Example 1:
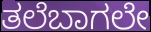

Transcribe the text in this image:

ತಲೆಬಾಗಲೇ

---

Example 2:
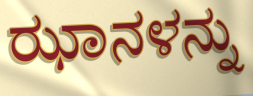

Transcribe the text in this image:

ಝಾನಳನ್ನು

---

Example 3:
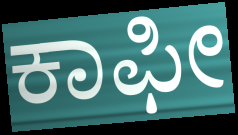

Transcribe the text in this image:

ಕಾಫೀ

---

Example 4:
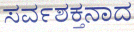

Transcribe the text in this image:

ಸರ್ವಶಕ್ತನಾದ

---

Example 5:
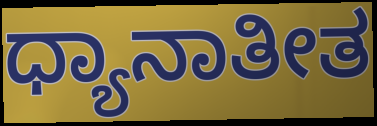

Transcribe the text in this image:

ಧ್ಯಾನಾತೀತ